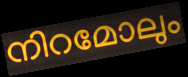
നിറമോലും